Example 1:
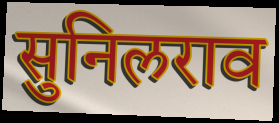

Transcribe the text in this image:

सुनिलराव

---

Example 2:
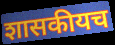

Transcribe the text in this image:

शासकीयच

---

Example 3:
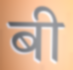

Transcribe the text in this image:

बी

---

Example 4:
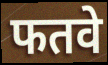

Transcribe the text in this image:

फतवे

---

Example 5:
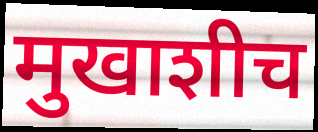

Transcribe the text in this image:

मुखाशीच